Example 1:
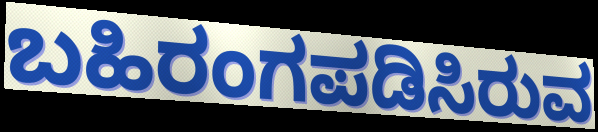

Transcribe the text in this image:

ಬಹಿರಂಗಪಡಿಸಿರುವ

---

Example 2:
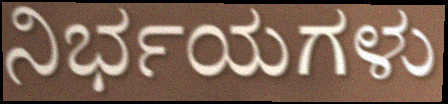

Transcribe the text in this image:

ನಿರ್ಭಯಗಳು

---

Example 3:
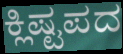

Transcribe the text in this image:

ಕ್ಲಿಷ್ಟಪದ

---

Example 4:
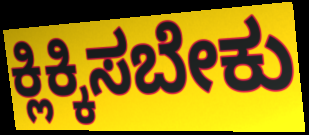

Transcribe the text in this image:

ಕ್ಲಿಕ್ಕಿಸಬೇಕು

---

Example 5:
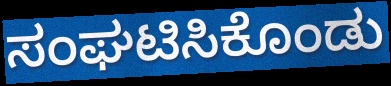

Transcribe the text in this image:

ಸಂಘಟಿಸಿಕೊಂಡು